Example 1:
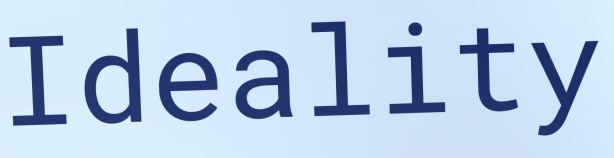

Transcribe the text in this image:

Ideality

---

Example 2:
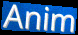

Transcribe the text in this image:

Anim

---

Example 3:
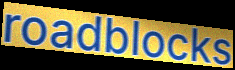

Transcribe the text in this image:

roadblocks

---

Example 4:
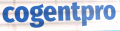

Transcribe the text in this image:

cogentpro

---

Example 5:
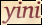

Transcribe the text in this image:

yini